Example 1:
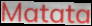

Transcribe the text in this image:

Matata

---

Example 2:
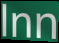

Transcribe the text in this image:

Inn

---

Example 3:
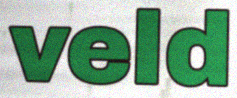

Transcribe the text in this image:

veld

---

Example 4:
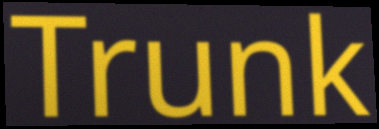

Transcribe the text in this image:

Trunk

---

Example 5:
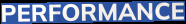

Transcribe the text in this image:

PERFORMANCE